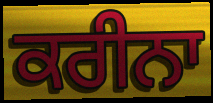
ਕਰੀਨਾ